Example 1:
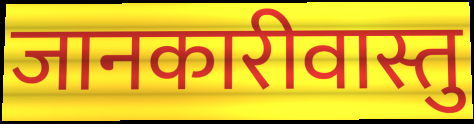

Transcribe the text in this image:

जानकारीवास्तु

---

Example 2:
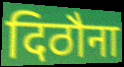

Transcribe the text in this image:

दिठौना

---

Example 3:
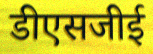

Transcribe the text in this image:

डीएसजीई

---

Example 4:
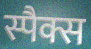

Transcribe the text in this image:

स्पैक्स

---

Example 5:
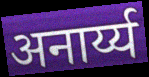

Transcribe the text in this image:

अनार्य्य